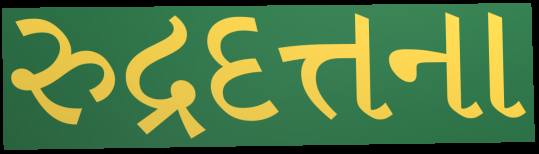
રુદ્રદત્તના